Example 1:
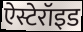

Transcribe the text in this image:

ऐस्टेरॉइड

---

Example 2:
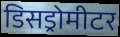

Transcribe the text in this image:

डिसड्रोमीटर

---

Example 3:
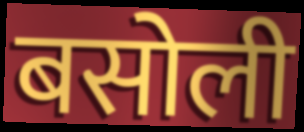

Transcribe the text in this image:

बसोली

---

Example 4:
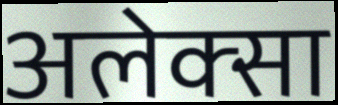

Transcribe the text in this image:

अलेक्‍सा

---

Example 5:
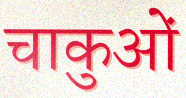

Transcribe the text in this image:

चाकुओं